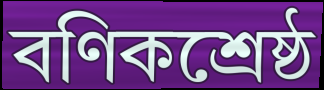
বণিকশ্রেষ্ঠ